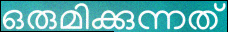
ഒരുമിക്കുന്നത്